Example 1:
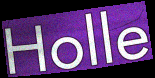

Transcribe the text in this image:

Holle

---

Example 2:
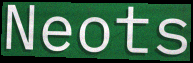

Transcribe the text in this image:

Neots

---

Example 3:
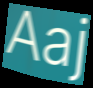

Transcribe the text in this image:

Aaj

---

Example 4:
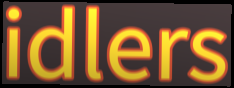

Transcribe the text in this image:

idlers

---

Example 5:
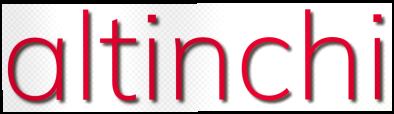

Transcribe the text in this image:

altinchi